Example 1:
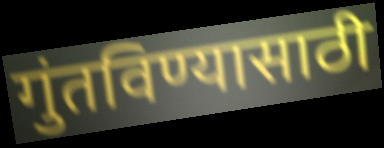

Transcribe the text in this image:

गुंतविण्यासाठी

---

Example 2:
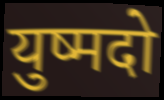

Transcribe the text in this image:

युष्मदो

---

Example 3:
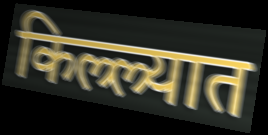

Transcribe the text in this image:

किल्ल्यात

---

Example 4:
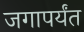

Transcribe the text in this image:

जगापर्यंत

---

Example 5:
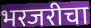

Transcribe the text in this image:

भरजरीचा